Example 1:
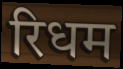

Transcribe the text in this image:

रिधम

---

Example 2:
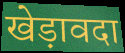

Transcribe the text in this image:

खेड़ावदा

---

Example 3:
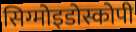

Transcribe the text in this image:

सिग्मोइडोस्कोपी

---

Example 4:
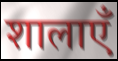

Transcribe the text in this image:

शालाएँ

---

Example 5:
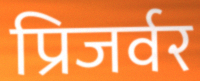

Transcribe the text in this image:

प्रिजर्वर